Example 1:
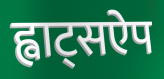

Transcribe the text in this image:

ह्वाट्सऐप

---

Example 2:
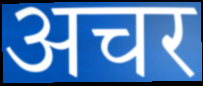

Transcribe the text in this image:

अचर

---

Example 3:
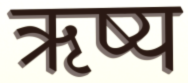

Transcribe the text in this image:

ऋष्य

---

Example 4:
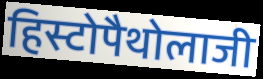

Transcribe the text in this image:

हिस्टोपैथोलाजी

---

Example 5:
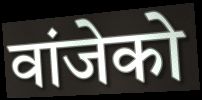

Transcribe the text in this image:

वांजेको